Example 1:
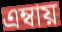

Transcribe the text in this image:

এম্বায়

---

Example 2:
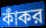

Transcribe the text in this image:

কাঁকর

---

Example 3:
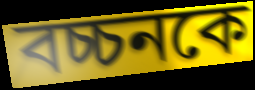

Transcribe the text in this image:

বচ্চনকে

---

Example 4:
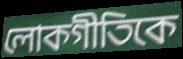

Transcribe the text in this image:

লোকগীতিকে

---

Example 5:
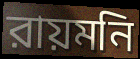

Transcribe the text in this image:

রায়মনি